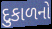
દુકાળનો